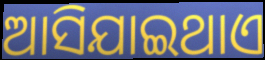
ଆସିଯାଇଥାଏ